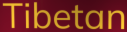
Tibetan